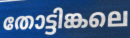
തോട്ടിങ്കലെ